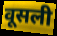
वूसली